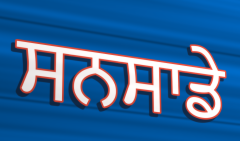
ਸਨਸਾਡੇ